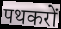
पथकरों